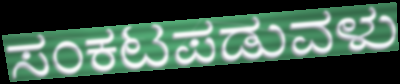
ಸಂಕಟಪಡುವಳು